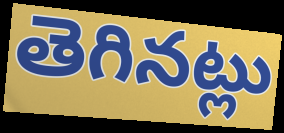
తెగినట్లు